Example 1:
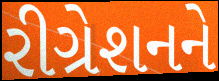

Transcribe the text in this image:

રીગ્રેશનને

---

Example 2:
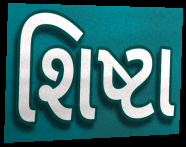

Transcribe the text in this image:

શિષ્ટા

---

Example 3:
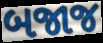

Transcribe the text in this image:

બજાજ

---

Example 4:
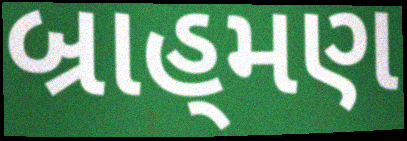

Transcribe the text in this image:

બ્રાહ્‌મણ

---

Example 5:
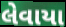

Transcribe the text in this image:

લેવાયા